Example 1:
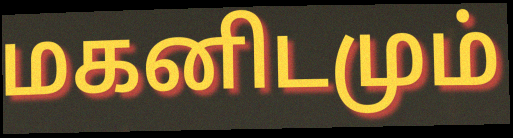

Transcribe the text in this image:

மகனிடமும்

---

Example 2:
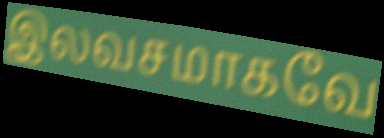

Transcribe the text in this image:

இலவசமாகவே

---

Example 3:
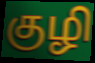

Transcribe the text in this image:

குழி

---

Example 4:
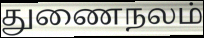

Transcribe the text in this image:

துணைநலம்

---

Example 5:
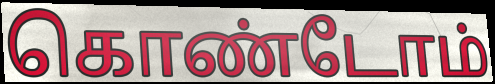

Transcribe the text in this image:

கொண்டோம்